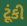
ટૂંકી